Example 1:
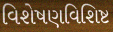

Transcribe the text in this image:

વિશેષણવિશિષ્ટ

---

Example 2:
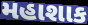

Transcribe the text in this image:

મહાશાક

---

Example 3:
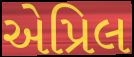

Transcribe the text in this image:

એપ્રિલ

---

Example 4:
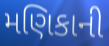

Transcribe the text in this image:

મણિકાની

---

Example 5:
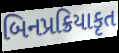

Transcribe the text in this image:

બિનપ્રક્રિયાકૃત